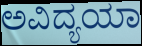
ಅವಿದ್ಯಯಾ